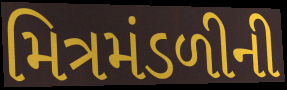
મિત્રમંડળીની